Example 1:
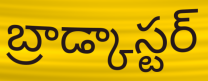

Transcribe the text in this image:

బ్రాడ్కాస్టర్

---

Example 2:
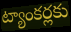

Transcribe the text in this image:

ట్యాంకర్లకు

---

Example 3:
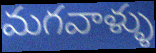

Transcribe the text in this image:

మగవాళ్ళు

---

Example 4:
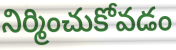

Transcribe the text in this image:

నిర్మించుకోవడం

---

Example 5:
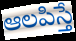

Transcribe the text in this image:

ఆలపిస్తే